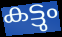
കട്ടും